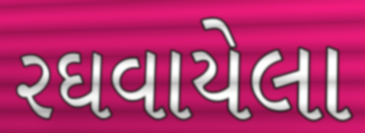
રઘવાયેલા